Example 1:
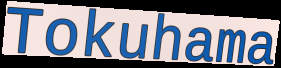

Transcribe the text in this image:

Tokuhama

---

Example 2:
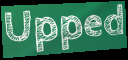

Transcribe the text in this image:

Upped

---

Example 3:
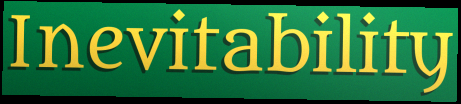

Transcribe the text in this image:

Inevitability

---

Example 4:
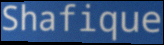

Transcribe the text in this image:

Shafique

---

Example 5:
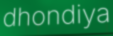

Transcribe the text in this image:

dhondiya